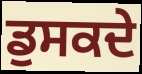
ਡੁਸਕਦੇ